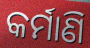
କର୍ମାଣି